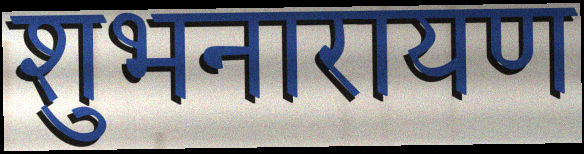
शुभनारायण